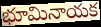
భూమినాయక